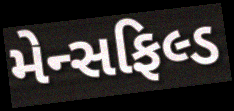
મેન્સફિલ્ડ